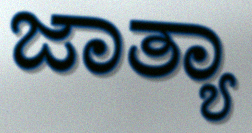
ಜಾತ್ಯಾ